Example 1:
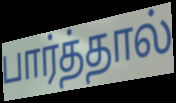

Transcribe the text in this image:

பார்த்தால்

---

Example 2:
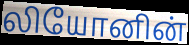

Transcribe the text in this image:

லியோனின்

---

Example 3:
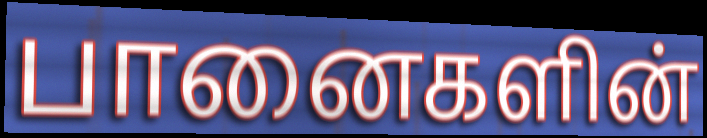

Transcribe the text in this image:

பானைகளின்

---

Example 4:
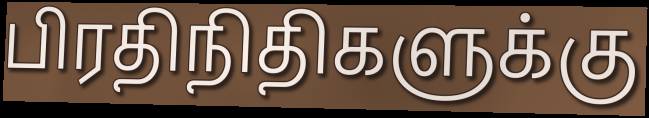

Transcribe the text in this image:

பிரதிநிதிகளுக்கு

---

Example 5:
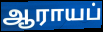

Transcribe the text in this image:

ஆராயப்